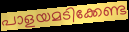
പാളയമടിക്കേണ്ട